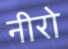
नीरो